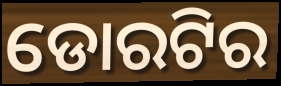
ଡୋରଟିର